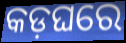
କଡ଼ଘରେ